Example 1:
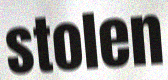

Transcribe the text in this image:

stolen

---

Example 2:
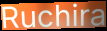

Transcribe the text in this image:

Ruchira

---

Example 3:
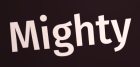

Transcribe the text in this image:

Mighty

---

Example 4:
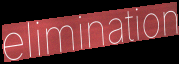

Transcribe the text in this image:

elimination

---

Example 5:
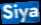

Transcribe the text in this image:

Siya